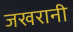
जखरानी